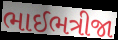
ભાઈભત્રીજા